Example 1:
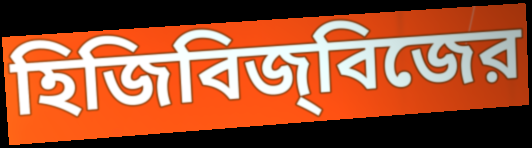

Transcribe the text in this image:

হিজিবিজ্‌বিজের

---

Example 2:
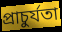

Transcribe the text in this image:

প্রাচুর্যতা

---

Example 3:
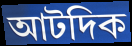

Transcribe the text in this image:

আটদিক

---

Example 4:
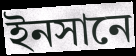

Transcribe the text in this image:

ইনসানে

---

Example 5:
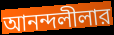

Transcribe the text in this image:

আনন্দলীলার